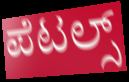
ಪೆಟಲ್ಸ್